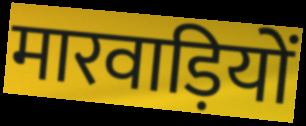
मारवाड़ियों